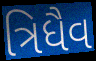
ત્રિધૈવ